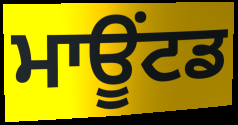
ਮਾਊਂਟਡ